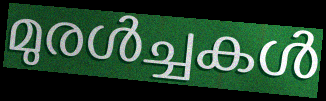
മുരൾച്ചകൾ